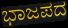
ಭಾಜಪದ